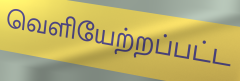
வெளியேற்றப்பட்ட